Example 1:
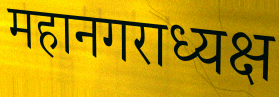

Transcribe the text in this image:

महानगराध्यक्ष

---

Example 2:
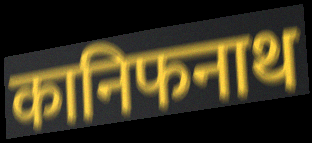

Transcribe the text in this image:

कानिफनाथ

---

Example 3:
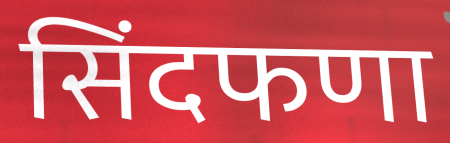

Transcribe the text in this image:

सिंदफणा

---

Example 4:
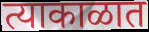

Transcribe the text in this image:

त्याकाळात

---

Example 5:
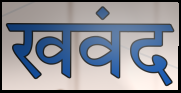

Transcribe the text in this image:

खवंद